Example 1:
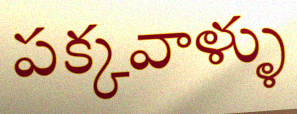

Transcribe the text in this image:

పక్కవాళ్ళు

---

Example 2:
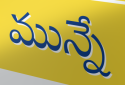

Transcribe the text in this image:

మున్నే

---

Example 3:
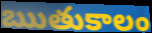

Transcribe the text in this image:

ఋతుకాలం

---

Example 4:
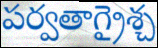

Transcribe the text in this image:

పర్వతాగ్రైశ్చ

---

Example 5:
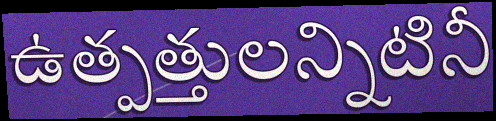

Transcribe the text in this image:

ఉత్పత్తులన్నిటినీ